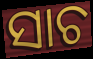
ସାଚ